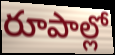
రూపాల్లో